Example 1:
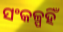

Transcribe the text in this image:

ସଂକଳ୍ପହିଁ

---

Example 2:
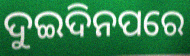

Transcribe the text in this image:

ଦୁଇଦିନପରେ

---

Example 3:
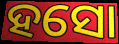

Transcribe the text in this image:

ହସୋ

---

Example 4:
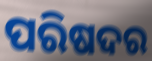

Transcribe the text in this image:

ପରିଷଦର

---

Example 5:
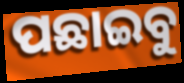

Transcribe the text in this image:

ପଛାଇବୁ